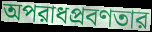
অপরাধপ্রবণতার